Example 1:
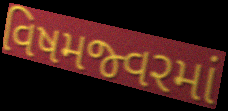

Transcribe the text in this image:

વિષમજ્વરમાં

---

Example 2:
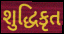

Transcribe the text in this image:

શુદ્ધિકૃત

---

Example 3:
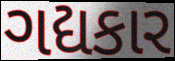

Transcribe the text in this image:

ગદ્યકાર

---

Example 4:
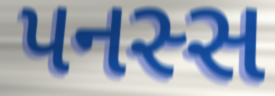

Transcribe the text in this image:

પનસ્સ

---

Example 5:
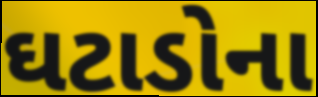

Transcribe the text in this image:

ઘટાડોના